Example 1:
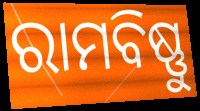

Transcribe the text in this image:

ରାମବିଷ୍ଣୁ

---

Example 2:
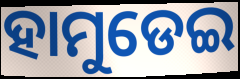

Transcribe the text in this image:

ହାମୁଡେଇ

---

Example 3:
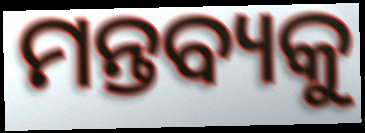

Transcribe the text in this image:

ମନ୍ତବ୍ୟକୁ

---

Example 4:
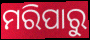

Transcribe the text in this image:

ମରିପାରୁ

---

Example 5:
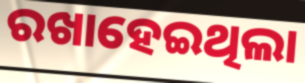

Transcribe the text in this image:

ରଖାହେଇଥିଲା